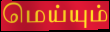
மெய்யும்